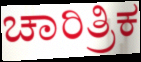
ಚಾರಿತ್ರಿಕ